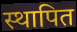
स्‍थापित